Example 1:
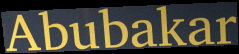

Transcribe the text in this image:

Abubakar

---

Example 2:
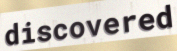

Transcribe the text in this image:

discovered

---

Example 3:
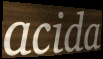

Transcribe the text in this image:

acida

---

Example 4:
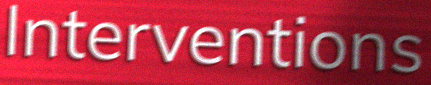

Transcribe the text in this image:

Interventions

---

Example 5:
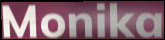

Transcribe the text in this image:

Monika